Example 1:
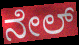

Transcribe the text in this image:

ನೇಲ್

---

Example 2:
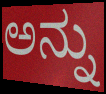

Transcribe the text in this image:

ಅನ್ನು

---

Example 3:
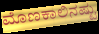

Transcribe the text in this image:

ಮೊಣಕಾಲಿನಷ್ಟು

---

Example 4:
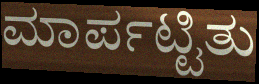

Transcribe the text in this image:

ಮಾರ್ಪಟ್ಟಿತು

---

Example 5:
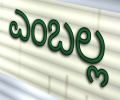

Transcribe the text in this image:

ಎಂಬಲ್ಲ